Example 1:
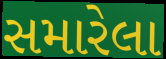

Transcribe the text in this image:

સમારેલા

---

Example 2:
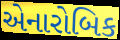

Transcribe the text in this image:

એનારોબિક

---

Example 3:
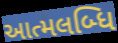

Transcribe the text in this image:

આત્મલબ્ધિ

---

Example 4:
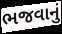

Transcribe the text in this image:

ભજવાનું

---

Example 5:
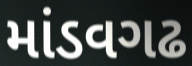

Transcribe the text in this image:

માંડવગઢ